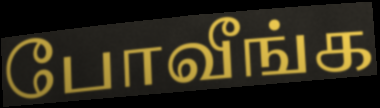
போவீங்க